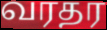
வரதர